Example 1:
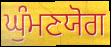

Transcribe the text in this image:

ਘੁੰਮਣਯੋਗ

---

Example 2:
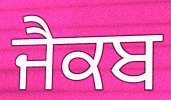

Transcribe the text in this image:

ਜੈਕਬ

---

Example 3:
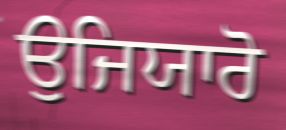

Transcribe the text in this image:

ਉਜਿਯਾਰੋ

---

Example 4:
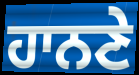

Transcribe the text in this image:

ਹਾਨਣੇ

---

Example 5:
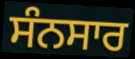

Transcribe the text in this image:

ਸੰਨਸਾਰ